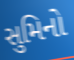
સુમિનો